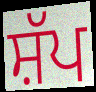
ਸ਼ੱਪ